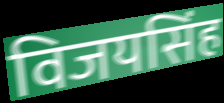
विजयसिंह